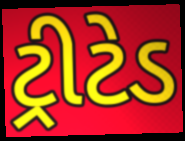
ટ્રીટેડ